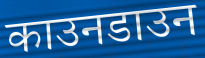
काउनडाउन